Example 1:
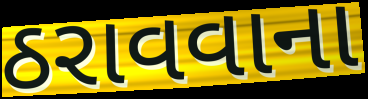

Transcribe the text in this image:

ઠરાવવાના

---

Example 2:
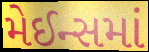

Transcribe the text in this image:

મેઈન્સમાં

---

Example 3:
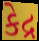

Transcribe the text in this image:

કેદ્ર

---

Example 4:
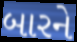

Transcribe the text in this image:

બારને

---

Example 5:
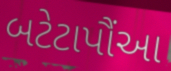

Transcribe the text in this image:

બટેટાપૌંઆ